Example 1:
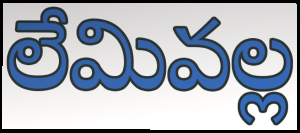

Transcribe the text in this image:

లేమివల్ల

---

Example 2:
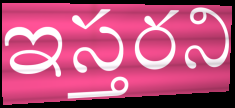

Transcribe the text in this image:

ఇస్తరని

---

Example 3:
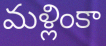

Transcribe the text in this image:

మళ్లింకా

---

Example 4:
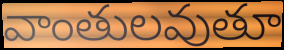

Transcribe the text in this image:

వాంతులవుతూ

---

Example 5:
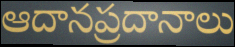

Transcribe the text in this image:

ఆదానప్రదానాలు